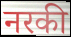
नरकी